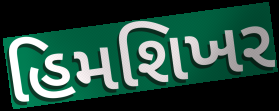
હિમશિખર